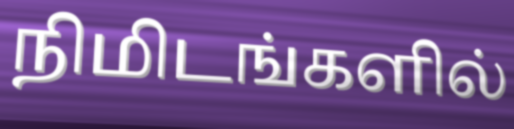
நிமிடங்களில்